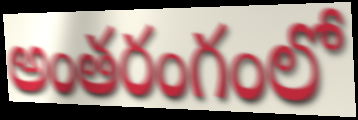
అంతరంగంలో